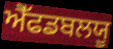
ਐੱਫਡਬਲਯੂ